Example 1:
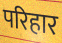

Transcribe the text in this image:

परिहार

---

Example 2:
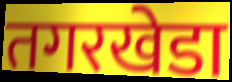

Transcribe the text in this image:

तगरखेडा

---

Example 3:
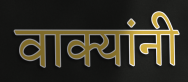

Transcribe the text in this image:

वाक्यांनी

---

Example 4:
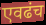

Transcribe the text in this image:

एवढंच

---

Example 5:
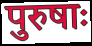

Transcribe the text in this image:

पुरुषाः